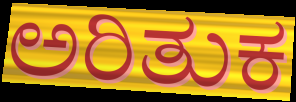
ಅರಿತುಕ